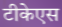
टीकेएस